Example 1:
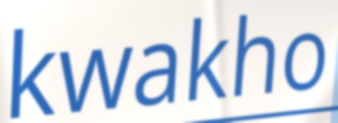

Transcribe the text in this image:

kwakho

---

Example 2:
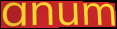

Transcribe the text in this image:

anum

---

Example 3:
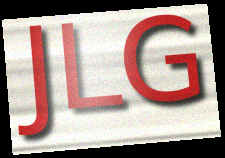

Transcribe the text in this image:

JLG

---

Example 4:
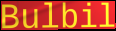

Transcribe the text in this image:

Bulbil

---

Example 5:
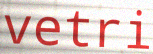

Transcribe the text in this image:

vetri